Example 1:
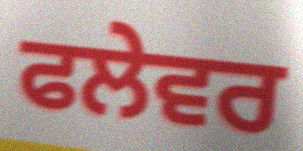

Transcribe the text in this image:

ਫਲੇਵਰ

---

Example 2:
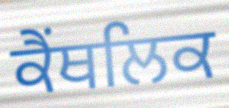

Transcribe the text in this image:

ਕੈਂਥਲਿਕ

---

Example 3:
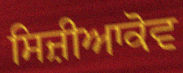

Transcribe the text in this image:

ਸਿਜ਼ੀਆਕੋਵ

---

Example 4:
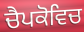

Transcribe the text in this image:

ਚੈਪਕੋਵਿਚ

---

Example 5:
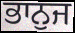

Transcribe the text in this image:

ਭਾਨੁਜ